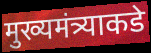
मुख्यमंत्र्याकडे